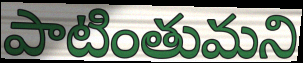
పాటింతుమని